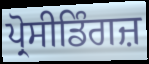
ਪ੍ਰੋਸੀਡਿੰਗਜ਼